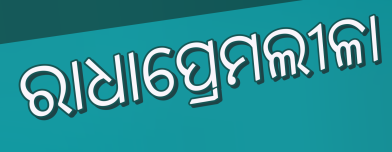
ରାଧାପ୍ରେମଲୀଳା